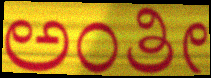
ಅಂತೀ